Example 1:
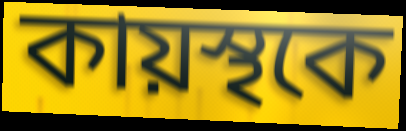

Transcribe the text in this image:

কায়স্থকে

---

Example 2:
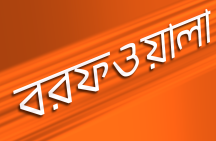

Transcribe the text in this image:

বরফওয়ালা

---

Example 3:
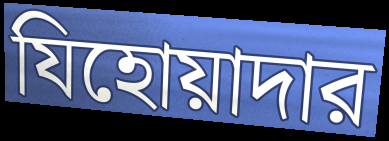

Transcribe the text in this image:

যিহোয়াদার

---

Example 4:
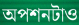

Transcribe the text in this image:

অপশনটাও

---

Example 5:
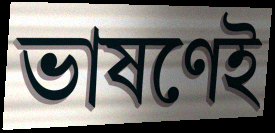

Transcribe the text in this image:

ভাষণেই